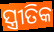
ସ୍ତ୍ରୀତିକ